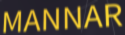
MANNAR